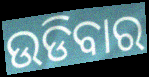
ଉଡିବାର